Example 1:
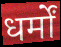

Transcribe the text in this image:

धर्मों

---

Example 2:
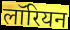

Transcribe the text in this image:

लॉरियन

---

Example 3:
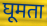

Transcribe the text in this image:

घूमता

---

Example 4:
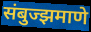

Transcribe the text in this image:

संबुज्झमाणे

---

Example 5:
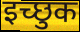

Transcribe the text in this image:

इच्छुक